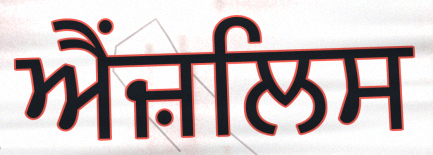
ਐਂਜ਼ਲਿਸ